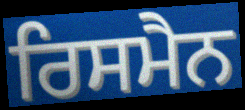
ਰਿਸਮੈਨ